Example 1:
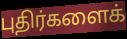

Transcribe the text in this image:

புதிர்களைக்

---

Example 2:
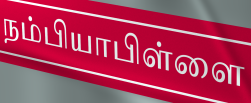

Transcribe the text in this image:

நம்பியாபிள்ளை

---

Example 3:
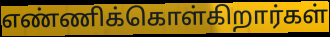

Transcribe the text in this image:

எண்ணிக்கொள்கிறார்கள்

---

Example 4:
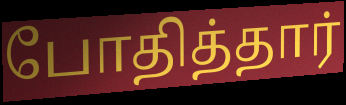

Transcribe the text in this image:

போதித்தார்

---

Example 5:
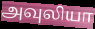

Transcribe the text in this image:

அவுலியா